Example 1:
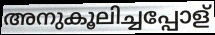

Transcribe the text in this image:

അനുകൂലിച്ചപ്പോള്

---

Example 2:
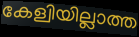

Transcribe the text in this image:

കേള്വിയില്ലാത്ത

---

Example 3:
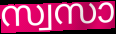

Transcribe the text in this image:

സ്വസാ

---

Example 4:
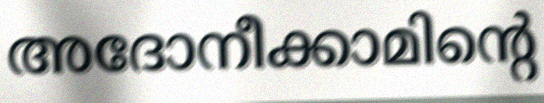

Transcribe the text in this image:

അദോനീക്കാമിന്റെ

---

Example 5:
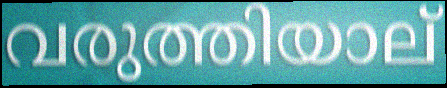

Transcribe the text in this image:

വരുത്തിയാല്